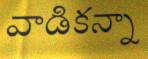
వాడికన్నా